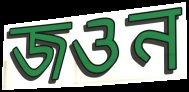
জওন